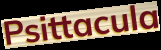
Psittacula